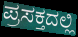
ಪ್ರಸಕ್ತದಲ್ಲಿ